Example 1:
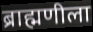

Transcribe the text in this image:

ब्राह्मणीला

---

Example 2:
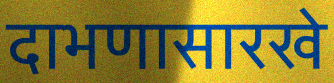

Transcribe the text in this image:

दाभणासारखे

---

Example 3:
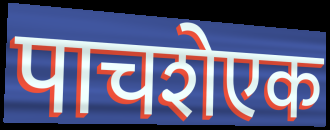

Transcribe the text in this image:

पाचशेएक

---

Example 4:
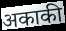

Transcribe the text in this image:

अकाकी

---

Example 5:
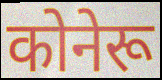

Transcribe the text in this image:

कोनेरू